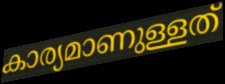
കാര്യമാണുള്ളത്